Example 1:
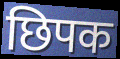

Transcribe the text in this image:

छिपक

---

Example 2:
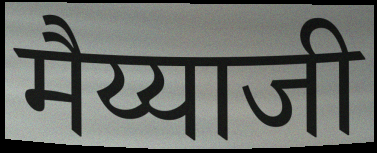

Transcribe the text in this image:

मैय्याजी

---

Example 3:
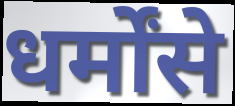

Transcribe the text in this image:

धर्मोंसे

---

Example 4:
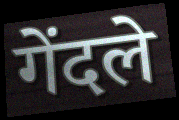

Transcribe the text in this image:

गेंदले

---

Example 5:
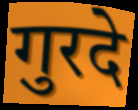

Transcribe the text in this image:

गुरदे